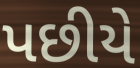
પછીયે